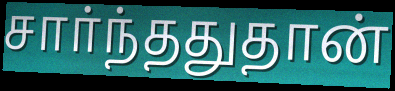
சார்ந்ததுதான்